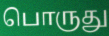
பொருது